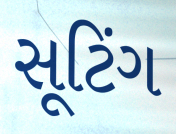
સૂટિંગ